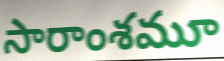
సారాంశమూ